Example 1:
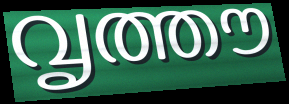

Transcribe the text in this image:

വൃത്തൗ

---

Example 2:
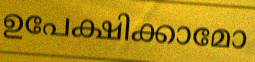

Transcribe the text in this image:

ഉപേക്ഷിക്കാമോ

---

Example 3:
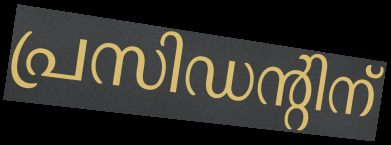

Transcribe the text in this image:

പ്രസിഡന്റിന്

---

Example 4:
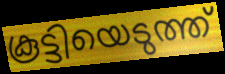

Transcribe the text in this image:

കൂട്ടിയെടുത്ത്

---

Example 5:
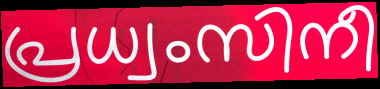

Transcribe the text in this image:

പ്രധ്വംസിനീ